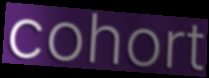
cohort